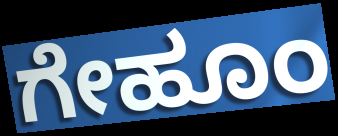
ಗೇಹೂಂ